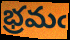
భ్రమఁ